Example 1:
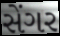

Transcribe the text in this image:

સેંગર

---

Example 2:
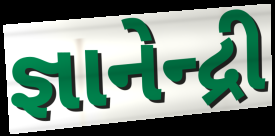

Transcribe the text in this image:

જ્ઞાનેન્દ્રી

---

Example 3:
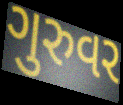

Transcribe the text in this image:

ગુરુવર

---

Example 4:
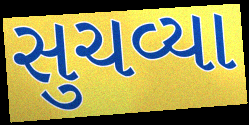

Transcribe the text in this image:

સુચવ્યા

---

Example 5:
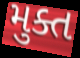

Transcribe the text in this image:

મુક્ત